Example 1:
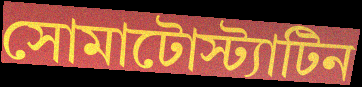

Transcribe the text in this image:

সোমাটোস্ট্যাটিন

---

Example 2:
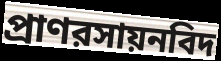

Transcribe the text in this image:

প্রাণরসায়নবিদ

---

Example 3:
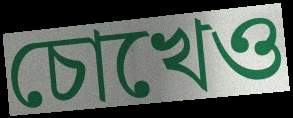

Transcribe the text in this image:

চোখেও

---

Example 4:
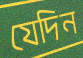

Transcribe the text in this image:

যেদিন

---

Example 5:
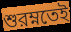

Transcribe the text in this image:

শুরম্নতেই